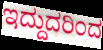
ಇದ್ದುದರಿಂದ